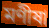
মণীষা